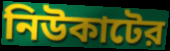
নিউকাটের